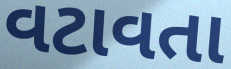
વટાવતા